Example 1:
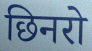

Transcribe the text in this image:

छिनरो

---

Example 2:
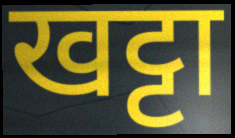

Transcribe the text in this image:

खट्टा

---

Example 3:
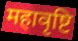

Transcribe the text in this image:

महावृष्टि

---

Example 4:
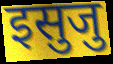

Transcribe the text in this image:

इसुजु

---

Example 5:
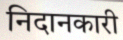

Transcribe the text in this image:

निदानकारी